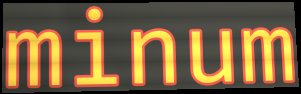
minum